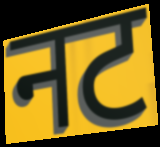
नट